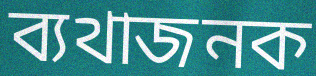
ব্যথাজনক